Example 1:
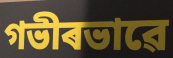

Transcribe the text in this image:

গভীৰভাৱে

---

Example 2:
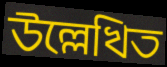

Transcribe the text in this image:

উল্লেখিত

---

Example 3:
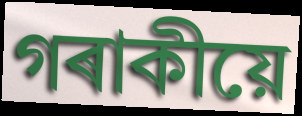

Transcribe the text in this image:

গৰাকীয়ে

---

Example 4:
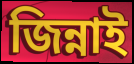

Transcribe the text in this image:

জিন্নাই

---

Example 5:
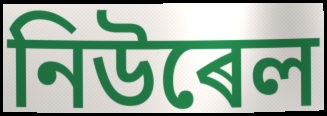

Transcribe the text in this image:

নিউৰেল